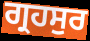
ਗ੍ਰਹਸੁਰ